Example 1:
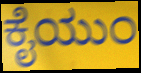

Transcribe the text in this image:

ಕೈಯುಂ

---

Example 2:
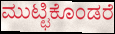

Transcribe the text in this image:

ಮುಟ್ಟಿಕೊಂಡರೆ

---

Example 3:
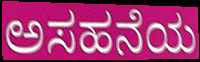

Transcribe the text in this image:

ಅಸಹನೆಯ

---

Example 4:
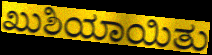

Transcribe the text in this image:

ಖುಶಿಯಾಯಿತು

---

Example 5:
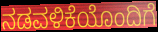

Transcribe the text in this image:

ನಡವಳಿಕೆಯೊಂದಿಗೆ